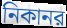
নিকানর